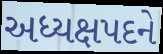
અધ્યક્ષપદને